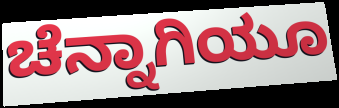
ಚೆನ್ನಾಗಿಯೂ